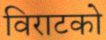
विराटको